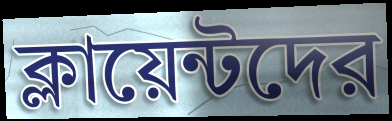
ক্লায়েন্টদের